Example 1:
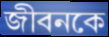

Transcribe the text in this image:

জীবনকে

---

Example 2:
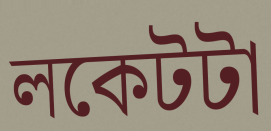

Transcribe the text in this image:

লকেটটা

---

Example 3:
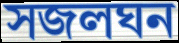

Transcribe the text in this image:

সজলঘন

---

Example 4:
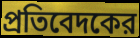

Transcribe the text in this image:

প্রতিবেদকের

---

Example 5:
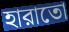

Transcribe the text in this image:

হারাতো